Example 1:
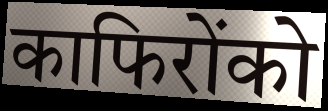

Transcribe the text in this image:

काफिरोंको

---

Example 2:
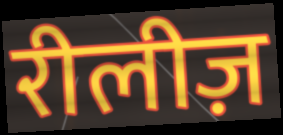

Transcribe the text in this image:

रीलीज़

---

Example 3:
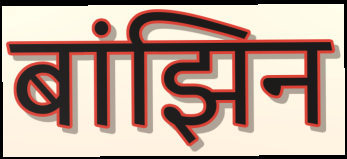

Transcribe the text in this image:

बांझिन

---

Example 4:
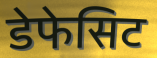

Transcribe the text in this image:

डेफेसिट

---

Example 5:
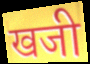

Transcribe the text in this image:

खजी